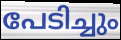
പേടിച്ചും